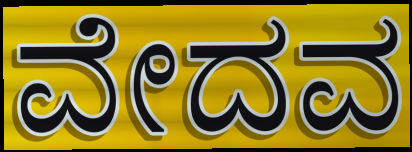
ವೇದವ